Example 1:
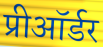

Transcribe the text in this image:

प्रीऑर्डर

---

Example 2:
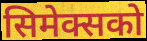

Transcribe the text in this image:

सिमेक्सको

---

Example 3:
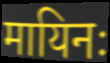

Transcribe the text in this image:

मायिनः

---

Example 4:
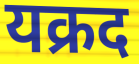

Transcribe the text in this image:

यक्रद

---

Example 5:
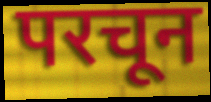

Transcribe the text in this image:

परचून